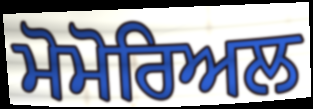
ਮੋਮੋਰਿਅਲ